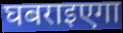
घबराइएगा